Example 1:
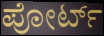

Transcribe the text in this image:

ಪೋರ್ಟ್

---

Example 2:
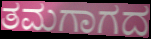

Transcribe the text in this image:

ತಮಗಾಗದ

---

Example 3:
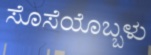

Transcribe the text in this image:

ಸೊಸೆಯೊಬ್ಬಳು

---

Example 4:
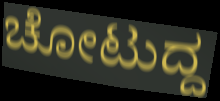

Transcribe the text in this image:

ಚೋಟುದ್ದ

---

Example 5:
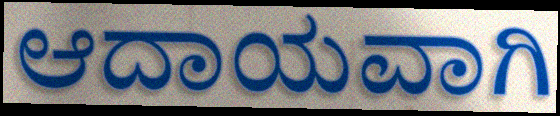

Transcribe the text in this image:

ಆದಾಯವಾಗಿ